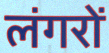
लंगरों